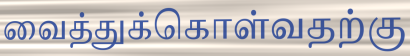
வைத்துக்கொள்வதற்கு